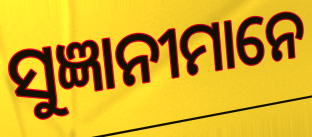
ସୁଜ୍ଞାନୀମାନେ